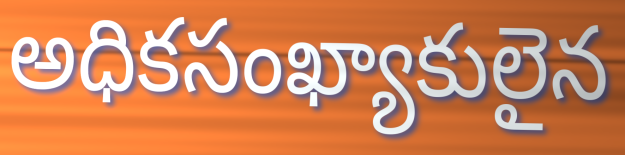
అధికసంఖ్యాకులైన